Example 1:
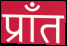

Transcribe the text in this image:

प्राँत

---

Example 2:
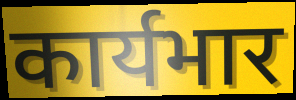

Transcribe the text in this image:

कार्यभार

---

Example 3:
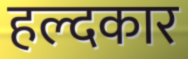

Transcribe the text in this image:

हल्दकार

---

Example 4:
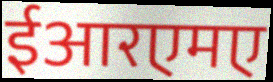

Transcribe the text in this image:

ईआरएमए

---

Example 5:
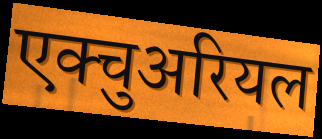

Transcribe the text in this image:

एक्चुअरियल